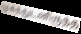
முகத்துடனிருந்த